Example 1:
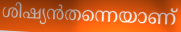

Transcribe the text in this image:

ശിഷ്യൻതന്നെയാണ്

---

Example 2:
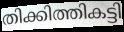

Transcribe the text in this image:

തിക്കിത്തികട്ടി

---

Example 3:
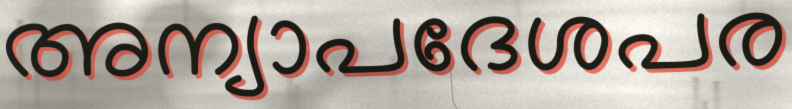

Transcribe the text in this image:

അന്യാപദേശപര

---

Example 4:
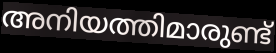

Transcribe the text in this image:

അനിയത്തിമാരുണ്ട്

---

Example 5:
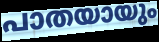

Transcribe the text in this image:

പാതയായും